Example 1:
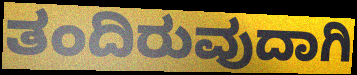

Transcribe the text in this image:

ತಂದಿರುವುದಾಗಿ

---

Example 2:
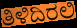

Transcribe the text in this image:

ತಿಳಿದಿರಲಿ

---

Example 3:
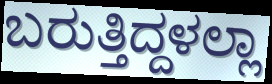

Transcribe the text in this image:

ಬರುತ್ತಿದ್ದಳಲ್ಲಾ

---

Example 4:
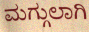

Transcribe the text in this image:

ಮಗ್ಗುಲಾಗಿ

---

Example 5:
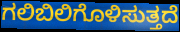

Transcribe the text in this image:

ಗಲಿಬಿಲಿಗೊಳಿಸುತ್ತದೆ